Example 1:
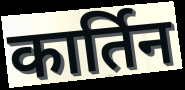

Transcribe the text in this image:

कार्तिन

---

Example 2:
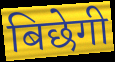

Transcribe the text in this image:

बिछेगी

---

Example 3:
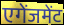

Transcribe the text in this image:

एगेंजमेंट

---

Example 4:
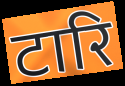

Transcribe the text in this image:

टारि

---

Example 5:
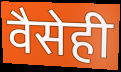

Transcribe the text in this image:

वैसेही